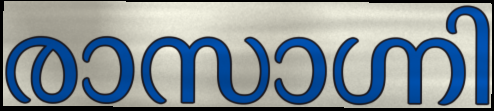
രാസാഗ്നി